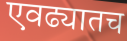
एवढ्यातच